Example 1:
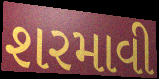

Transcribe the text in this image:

શરમાવી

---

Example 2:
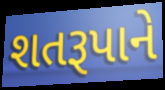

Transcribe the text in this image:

શતરૂપાને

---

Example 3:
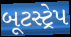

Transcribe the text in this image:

બૂટસ્ટ્રેપ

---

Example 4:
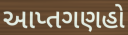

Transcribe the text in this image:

આપ્તગણહો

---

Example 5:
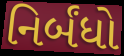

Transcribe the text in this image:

નિર્બંધો